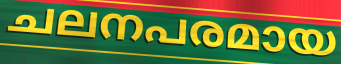
ചലനപരമായ